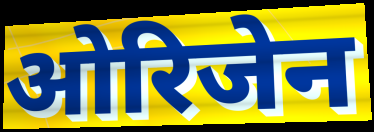
ओरिजेन